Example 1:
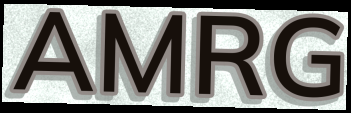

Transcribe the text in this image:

AMRG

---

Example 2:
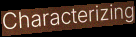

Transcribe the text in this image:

Characterizing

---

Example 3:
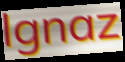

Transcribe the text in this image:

Ignaz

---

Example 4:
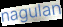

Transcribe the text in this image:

nagulan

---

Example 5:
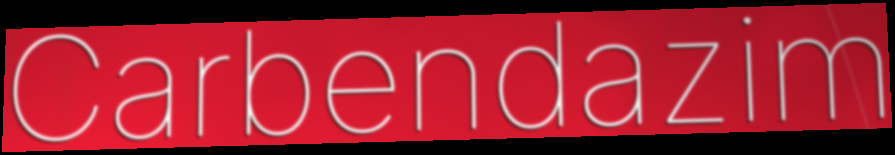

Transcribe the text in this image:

Carbendazim